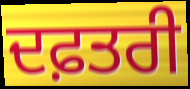
ਦਫ਼ਤਰੀ